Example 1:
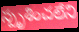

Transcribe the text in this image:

స్పృశించలేని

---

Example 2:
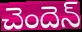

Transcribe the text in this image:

చెందెన్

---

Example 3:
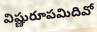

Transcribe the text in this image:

విష్ణురూపమిదివో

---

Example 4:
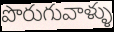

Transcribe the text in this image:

పొరుగువాళ్ళు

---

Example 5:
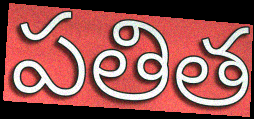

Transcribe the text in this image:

పతిత